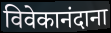
विवेकानंदाना